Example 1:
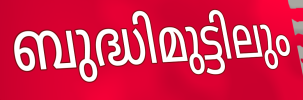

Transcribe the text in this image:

ബുദ്ധിമുട്ടിലും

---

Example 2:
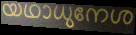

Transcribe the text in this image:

യഥാധുനേശ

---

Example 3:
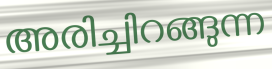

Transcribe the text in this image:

അരിച്ചിറങ്ങുന്ന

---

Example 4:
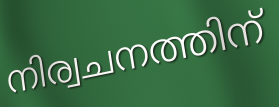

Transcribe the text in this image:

നിര്വചനത്തിന്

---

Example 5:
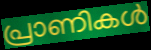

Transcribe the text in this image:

പ്രാണികൾ